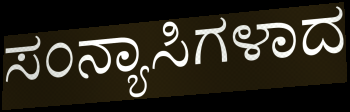
ಸಂನ್ಯಾಸಿಗಳಾದ